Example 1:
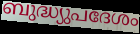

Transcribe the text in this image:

ബുദ്ധ്യുപദേശം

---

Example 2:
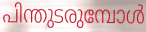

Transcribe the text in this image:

പിന്തുടരുമ്പോൾ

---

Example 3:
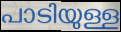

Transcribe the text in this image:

പാടിയുള്ള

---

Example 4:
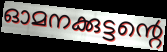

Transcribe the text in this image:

ഓമനക്കുട്ടന്റെ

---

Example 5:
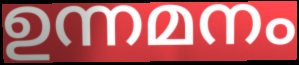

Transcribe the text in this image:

ഉന്നമനം